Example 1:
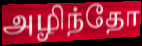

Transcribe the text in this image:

அழிந்தோ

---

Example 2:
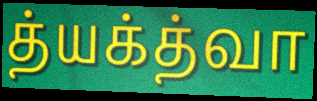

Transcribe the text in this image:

த்யக்த்வா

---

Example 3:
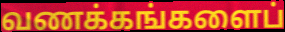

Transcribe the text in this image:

வணக்கங்களைப்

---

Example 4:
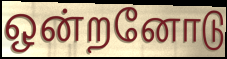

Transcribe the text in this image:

ஒன்றனோடு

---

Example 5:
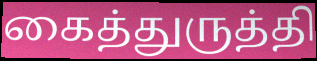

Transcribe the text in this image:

கைத்துருத்தி